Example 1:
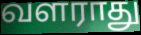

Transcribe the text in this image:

வளராது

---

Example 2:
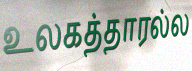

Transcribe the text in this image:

உலகத்தாரல்ல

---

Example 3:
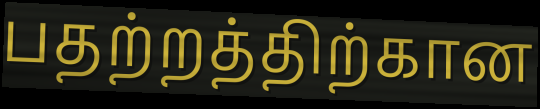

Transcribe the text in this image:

பதற்றத்திற்கான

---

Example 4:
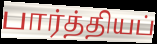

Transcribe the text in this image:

பார்த்தியப்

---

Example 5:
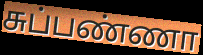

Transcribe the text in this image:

சுப்பண்ணா